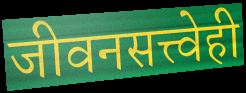
जीवनसत्त्वेही